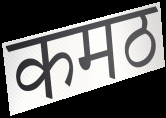
कमठ